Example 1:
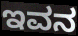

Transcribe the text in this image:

ಇವನ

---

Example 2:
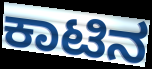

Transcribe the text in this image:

ಕಾಟಿನ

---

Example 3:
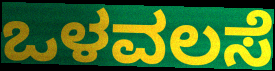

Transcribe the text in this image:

ಒಳವಲಸೆ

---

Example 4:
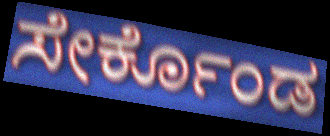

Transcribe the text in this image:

ಸೇರ್ಕೊಂಡ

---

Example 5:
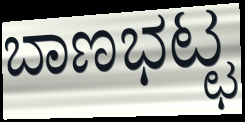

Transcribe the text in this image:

ಬಾಣಭಟ್ಟ